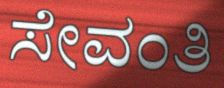
ಸೇವಂತಿ